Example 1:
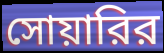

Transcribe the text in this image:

সোয়ারির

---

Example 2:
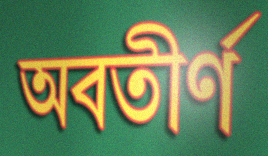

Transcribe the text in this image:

অবতীর্ণ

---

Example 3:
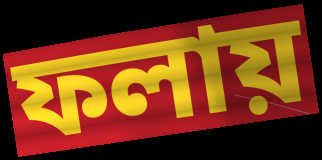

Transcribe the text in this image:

ফলায়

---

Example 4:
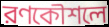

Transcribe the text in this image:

রণকৌশলে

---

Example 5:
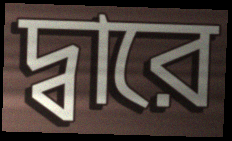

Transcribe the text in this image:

দ্বারে